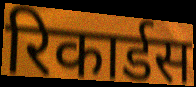
रिकार्डस